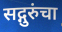
सद्गुरुंचा